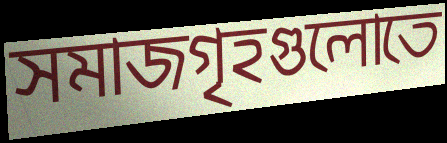
সমাজগৃহগুলোতে